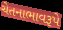
ચેતનાભાવરૂપે